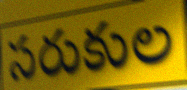
సరుకుల